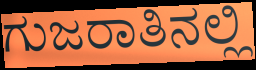
ಗುಜರಾತಿನಲ್ಲಿ